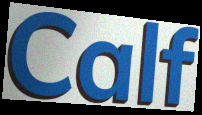
Calf